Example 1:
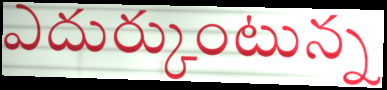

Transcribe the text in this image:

ఎదుర్కుంటున్న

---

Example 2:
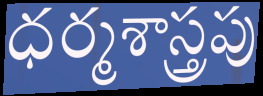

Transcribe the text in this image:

ధర్మశాస్త్రపు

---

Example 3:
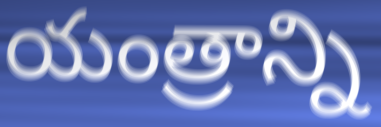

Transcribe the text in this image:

యంత్రాన్ని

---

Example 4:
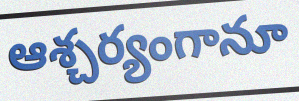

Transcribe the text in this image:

ఆశ్చర్యంగానూ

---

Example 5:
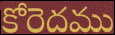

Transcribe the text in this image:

కోరెదము